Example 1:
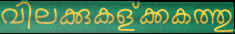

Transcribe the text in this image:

വിലക്കുകള്ക്കകത്തു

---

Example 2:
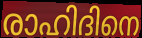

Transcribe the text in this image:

രാഹിദിനെ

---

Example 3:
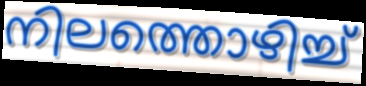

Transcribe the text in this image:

നിലത്തൊഴിച്ച്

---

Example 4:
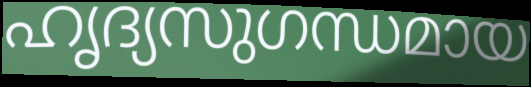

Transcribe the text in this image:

ഹൃദ്യസുഗന്ധമായ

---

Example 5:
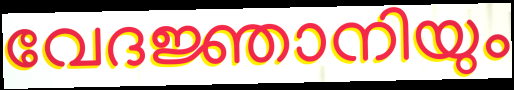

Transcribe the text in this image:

വേദജ്ഞാനിയും